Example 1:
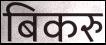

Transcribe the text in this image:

बिकरु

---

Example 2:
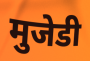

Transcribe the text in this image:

मुजेडी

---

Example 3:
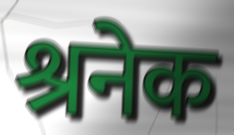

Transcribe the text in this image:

श्रनेक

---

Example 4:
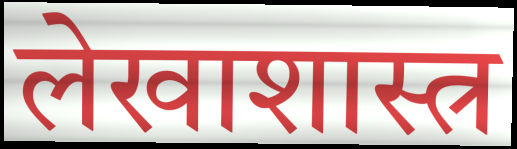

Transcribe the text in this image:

लेखाशास्त्र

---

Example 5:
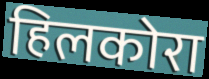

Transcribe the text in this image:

हिलकोरा